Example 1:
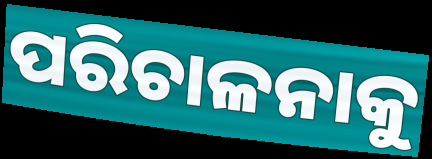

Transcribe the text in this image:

ପରିଚାଳନାକୁ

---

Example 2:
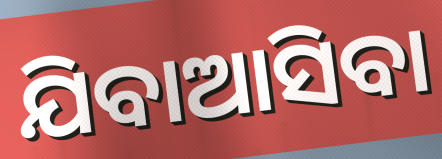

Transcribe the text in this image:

ଯିବାଆସିବା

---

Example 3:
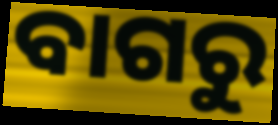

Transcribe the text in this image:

ବାଗରୁ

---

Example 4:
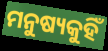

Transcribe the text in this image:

ମନୁଷ୍ୟକୁହିଁ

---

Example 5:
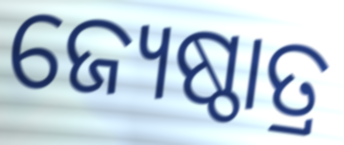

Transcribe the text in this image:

ଜ୍ୟେଷ୍ଠାତ୍ର